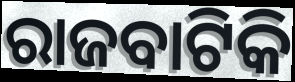
ରାଜବାଟିକି